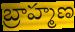
బ్రాహ్మణ